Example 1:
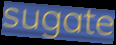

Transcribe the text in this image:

sugate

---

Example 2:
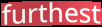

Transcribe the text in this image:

furthest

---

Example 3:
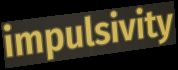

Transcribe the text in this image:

impulsivity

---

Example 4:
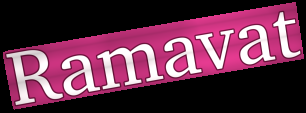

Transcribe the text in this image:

Ramavat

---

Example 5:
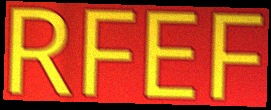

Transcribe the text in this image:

RFEF